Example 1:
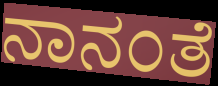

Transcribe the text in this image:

ನಾನಂತೆ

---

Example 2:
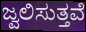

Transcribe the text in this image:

ಜ್ವಲಿಸುತ್ತವೆ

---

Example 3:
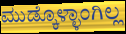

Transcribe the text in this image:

ಮುಡ್ಕೊಳ್ಳಾಂಗಿಲ್ಲ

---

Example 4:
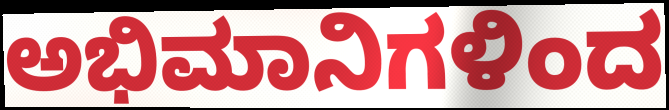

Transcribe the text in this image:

ಅಭಿಮಾನಿಗಳಿಂದ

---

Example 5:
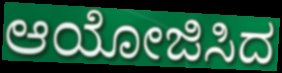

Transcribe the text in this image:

ಆಯೋಜಿಸಿದ